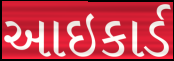
આઇકાર્ડ